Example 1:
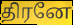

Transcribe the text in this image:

திரனே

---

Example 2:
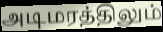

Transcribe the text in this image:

அடிமரத்திலும்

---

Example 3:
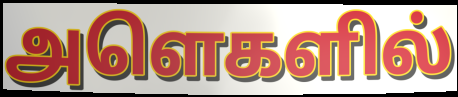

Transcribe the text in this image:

அளெகளில்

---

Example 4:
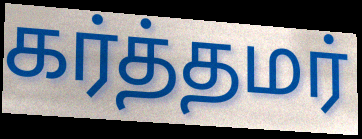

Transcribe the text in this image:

கர்த்தமர்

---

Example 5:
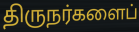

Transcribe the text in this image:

திருநர்களைப்